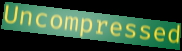
Uncompressed